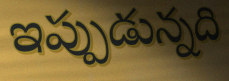
ఇప్పుడున్నది